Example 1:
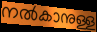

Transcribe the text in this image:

നൽകാനുള്ള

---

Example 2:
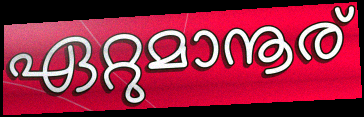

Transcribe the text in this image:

ഏറ്റുമാനൂര്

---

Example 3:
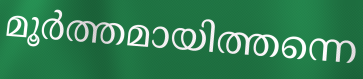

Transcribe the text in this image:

മൂർത്തമായിത്തന്നെ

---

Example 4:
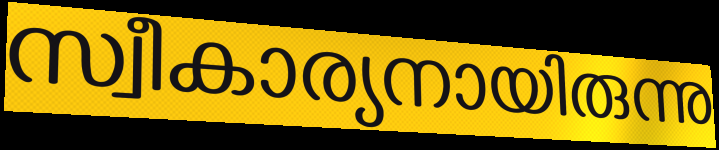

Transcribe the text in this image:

സ്വീകാര്യനായിരുന്നു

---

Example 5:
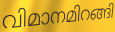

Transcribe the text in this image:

വിമാനമിറങ്ങി